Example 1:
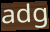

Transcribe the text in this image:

adg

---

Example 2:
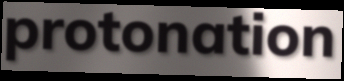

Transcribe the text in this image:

protonation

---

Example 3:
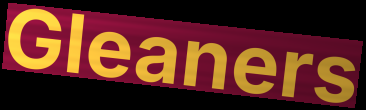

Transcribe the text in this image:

Gleaners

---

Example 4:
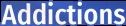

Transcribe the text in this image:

Addictions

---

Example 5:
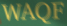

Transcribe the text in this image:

WAQF